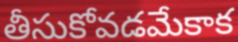
తీసుకోవడమేకాక